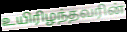
உயிரிழந்தவரின்